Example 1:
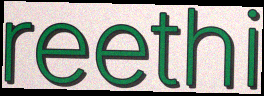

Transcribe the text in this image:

reethi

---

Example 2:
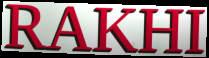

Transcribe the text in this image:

RAKHI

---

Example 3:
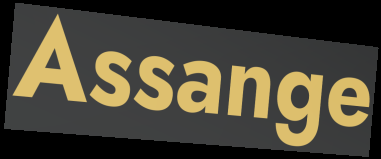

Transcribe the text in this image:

Assange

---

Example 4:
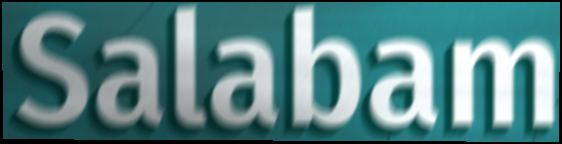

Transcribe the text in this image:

Salabam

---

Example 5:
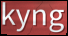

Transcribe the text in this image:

kyng